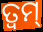
ତ୍ୱମ୍